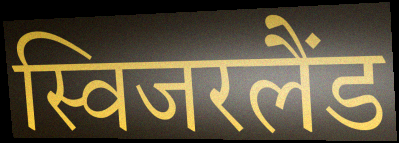
स्विजरलैंड